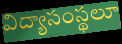
విద్యాసంస్థలూ